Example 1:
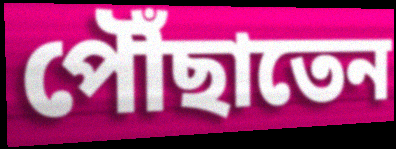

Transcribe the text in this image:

পৌঁছাতেন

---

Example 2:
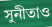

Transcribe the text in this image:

সুনীতাও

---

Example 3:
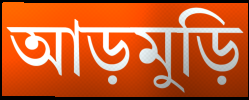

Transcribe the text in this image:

আড়মুড়ি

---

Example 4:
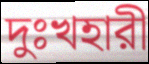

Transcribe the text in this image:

দুঃখহারী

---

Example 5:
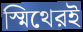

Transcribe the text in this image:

স্মিথেরই